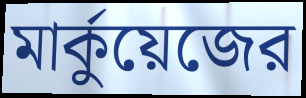
মার্কুয়েজের